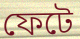
ফেটে